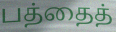
பத்தைத்